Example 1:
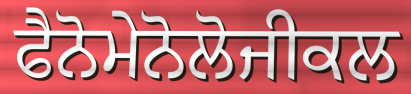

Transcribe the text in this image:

ਫੈਨੋਮੇਨੋਲੋਜੀਕਲ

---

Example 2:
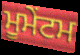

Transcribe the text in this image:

ਮੂਮੇਂਟਮ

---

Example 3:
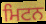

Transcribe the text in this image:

ਮਿਟਨ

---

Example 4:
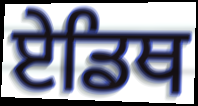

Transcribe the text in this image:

ਏਡਿਥ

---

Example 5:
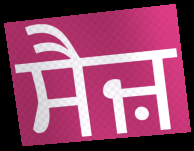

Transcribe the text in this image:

ਸੈਜ਼